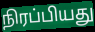
நிரப்பியது